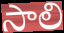
సాలి